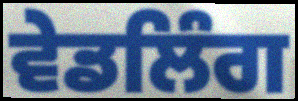
ਵੇਡਲਿੰਗ